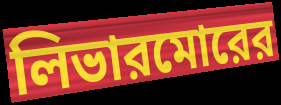
লিভারমোরের